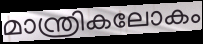
മാന്ത്രികലോകം